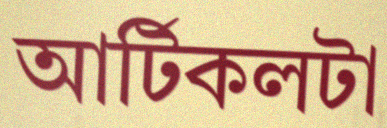
আর্টিকলটা